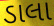
ડાલા